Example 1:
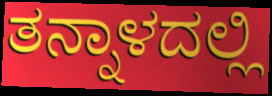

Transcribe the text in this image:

ತನ್ನಾಳದಲ್ಲಿ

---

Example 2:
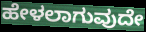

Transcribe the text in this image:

ಹೇಳಲಾಗುವುದೇ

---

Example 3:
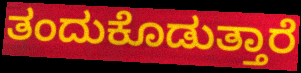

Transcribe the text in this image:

ತಂದುಕೊಡುತ್ತಾರೆ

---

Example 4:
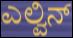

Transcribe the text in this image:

ಎಲ್ವಿನ್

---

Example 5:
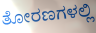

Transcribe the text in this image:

ತೋರಣಗಳಲ್ಲಿ